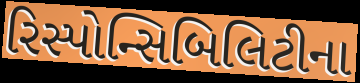
રિસ્પોન્સિબિલિટીના